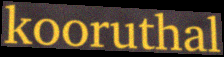
kooruthal